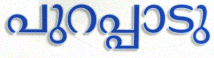
പുറപ്പാടു